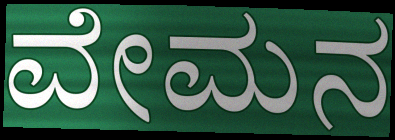
ವೇಮನ